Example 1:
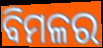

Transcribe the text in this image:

ବିମଳର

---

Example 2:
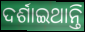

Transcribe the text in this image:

ଦର୍ଶାଇଥାନ୍ତି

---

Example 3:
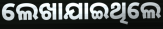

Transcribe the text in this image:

ଲେଖାଯାଇଥିଲେ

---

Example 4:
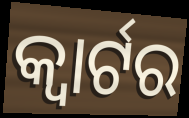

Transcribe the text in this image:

କ୍ଵାର୍ଟର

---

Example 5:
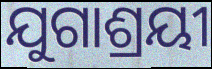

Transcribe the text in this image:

ଯୁଗାଶ୍ରୟୀ